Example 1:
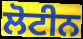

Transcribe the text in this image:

ਲੋਟੀਨ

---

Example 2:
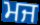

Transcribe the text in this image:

ਮਜ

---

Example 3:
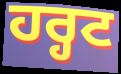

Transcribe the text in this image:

ਹਰ੍ਹਟ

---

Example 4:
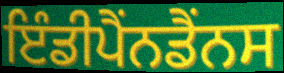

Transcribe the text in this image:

ਇੰਡੀਪੈਂਨਡੈਂਨਸ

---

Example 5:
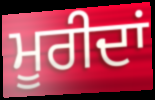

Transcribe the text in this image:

ਮੂਰੀਦਾਂ